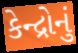
કેન્દ્રોનું